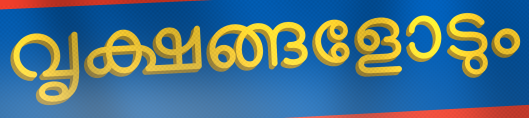
വൃക്ഷങ്ങളോടും